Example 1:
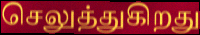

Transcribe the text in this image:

செலுத்துகிறது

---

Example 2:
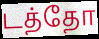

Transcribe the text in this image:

டத்தோ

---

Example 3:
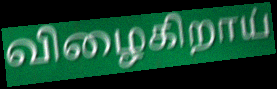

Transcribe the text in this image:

விழைகிறாய்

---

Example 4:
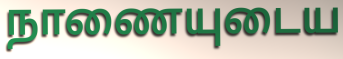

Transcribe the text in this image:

நாணையுடைய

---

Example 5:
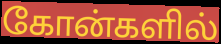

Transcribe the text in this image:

கோன்களில்